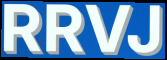
RRVJ